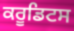
ਕਰੂਡਿਟਸ